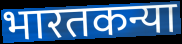
भारतकन्या